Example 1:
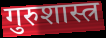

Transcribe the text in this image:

गुरुशास्त्र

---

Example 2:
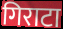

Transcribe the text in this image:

गिराटा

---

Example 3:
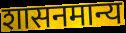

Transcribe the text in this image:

शासनमान्य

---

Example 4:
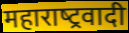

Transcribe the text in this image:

महाराष्ट्रवादी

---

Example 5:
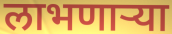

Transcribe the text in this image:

लाभणाऱ्या